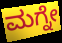
ಮಗ್ನೇ